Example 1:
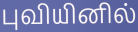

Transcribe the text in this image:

புவியினில்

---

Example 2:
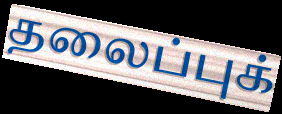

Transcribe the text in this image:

தலைப்புக்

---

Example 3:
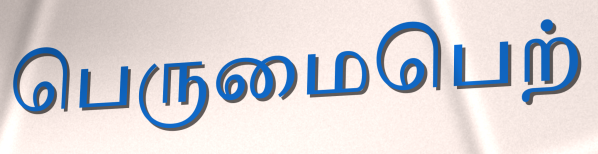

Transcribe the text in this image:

பெருமைபெற்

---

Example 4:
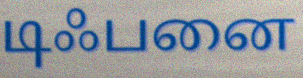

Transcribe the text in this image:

டிஃபனை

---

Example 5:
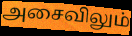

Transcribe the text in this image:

அசைவிலும்